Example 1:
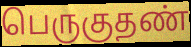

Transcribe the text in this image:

பெருகுதண்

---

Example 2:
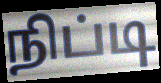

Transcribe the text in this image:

நிப்டி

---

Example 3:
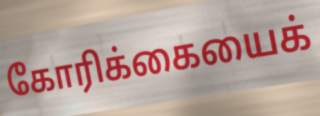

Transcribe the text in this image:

கோரிக்கையைக்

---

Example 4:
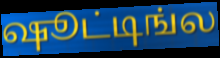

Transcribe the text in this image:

ஷூட்டிங்ல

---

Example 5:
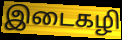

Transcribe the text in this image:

இடைகழி